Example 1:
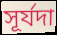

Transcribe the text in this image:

সূর্যদা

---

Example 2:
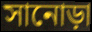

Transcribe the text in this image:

সানোড়া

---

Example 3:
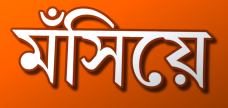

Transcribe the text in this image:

মঁসিয়ে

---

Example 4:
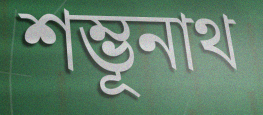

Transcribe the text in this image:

শম্ভূনাথ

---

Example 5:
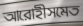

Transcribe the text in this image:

আরোহীসমেত